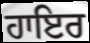
ਹਾਇਰ